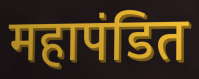
महापंडित